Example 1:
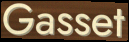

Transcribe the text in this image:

Gasset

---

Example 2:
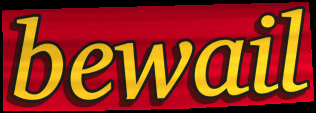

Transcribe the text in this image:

bewail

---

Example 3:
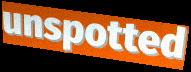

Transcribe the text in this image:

unspotted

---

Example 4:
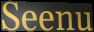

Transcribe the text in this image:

Seenu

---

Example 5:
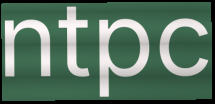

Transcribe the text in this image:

ntpc